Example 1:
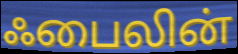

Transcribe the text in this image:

ஃபைலின்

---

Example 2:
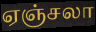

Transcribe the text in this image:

ஏஞ்சலா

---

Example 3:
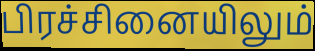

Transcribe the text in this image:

பிரச்சினையிலும்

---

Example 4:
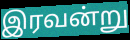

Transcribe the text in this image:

இரவன்று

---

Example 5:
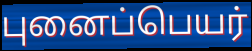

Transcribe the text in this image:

புனைப்பெயர்